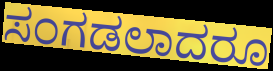
ಸಂಗಡಲಾದರೂ